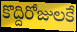
కొద్దిరోజులకే